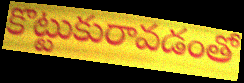
కొట్టుకురావడంతో